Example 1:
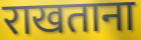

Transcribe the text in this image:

राखताना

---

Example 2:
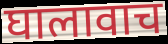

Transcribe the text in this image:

घालावाच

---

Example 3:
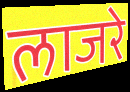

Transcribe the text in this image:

लाजरे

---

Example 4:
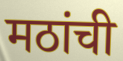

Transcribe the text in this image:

मठांची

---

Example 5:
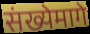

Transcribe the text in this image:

संख्येमागे